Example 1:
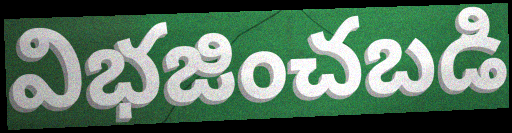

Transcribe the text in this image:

విభజించబడి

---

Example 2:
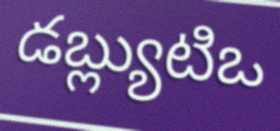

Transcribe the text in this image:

డబ్ల్యుటిఒ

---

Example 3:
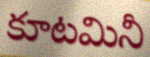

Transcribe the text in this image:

కూటమినీ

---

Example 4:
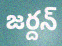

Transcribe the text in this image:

జర్దన్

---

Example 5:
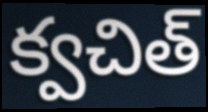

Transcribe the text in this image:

క్వచిత్